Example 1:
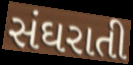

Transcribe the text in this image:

સંઘરાતી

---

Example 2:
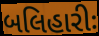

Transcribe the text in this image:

બલિહારીઃ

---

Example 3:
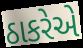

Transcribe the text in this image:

ઠાકરેએ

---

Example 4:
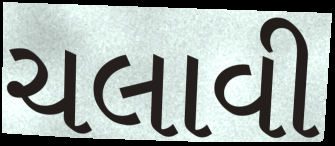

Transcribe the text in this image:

ચલાવી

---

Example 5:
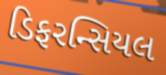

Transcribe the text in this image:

ડિફરન્સિયલ